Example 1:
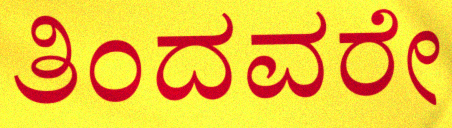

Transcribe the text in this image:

ತಿಂದವರೇ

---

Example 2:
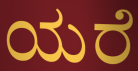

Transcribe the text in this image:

ಯರೆ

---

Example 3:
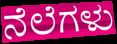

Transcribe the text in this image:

ನೆಲೆಗಳು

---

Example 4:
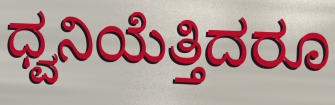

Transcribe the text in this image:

ಧ್ವನಿಯೆತ್ತಿದರೂ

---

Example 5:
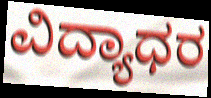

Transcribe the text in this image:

ವಿದ್ಯಾಧರ